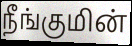
நீங்குமின்